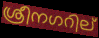
ശ്രീനഗറില്